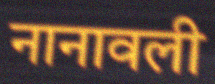
नानावली